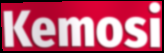
Kemosi